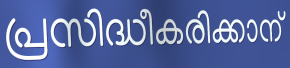
പ്രസിദ്ധീകരിക്കാന്